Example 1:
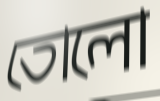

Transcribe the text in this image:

তোলো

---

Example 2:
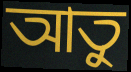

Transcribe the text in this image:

আতু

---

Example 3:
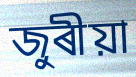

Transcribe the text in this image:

জুৰীয়া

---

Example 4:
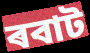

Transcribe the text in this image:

ৰবাট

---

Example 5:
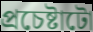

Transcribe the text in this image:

প্ৰচেষ্টাটো